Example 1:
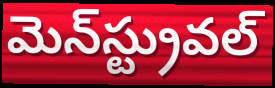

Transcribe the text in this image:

మెన్‌స్ట్రువల్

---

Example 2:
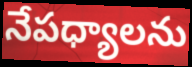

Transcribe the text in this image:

నేపధ్యాలను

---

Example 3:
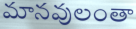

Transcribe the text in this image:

మానవులంతా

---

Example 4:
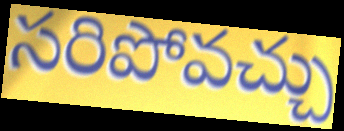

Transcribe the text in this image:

సరిపోవచ్చు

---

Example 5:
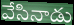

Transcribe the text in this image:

వేసినాడు